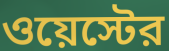
ওয়েস্টের